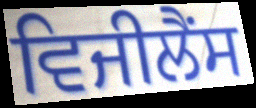
ਵਿਜੀਲੈਂਸ